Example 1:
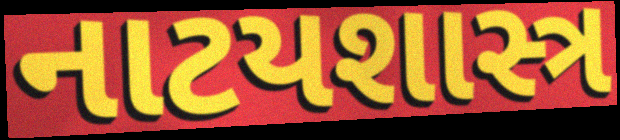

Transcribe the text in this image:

નાટયશાસ્ત્ર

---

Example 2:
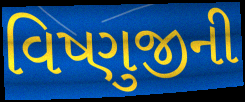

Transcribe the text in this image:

વિષ્ણુજીની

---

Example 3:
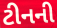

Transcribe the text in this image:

ટીનની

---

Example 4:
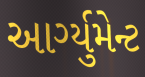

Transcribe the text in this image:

આર્ગ્યુમેન્ટ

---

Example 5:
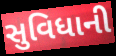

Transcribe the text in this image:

સુવિધાની